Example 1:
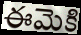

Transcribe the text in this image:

ఈమెకి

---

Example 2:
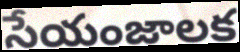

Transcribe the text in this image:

సేయంజాలక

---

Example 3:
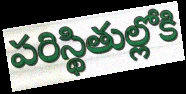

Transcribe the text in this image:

పరిస్థితుల్లోకి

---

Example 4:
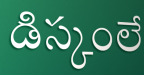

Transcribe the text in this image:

డిస్కంలే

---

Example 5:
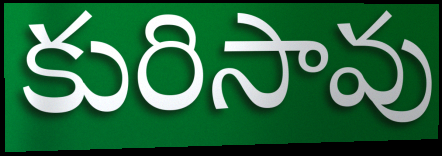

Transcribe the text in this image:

కురిసావు